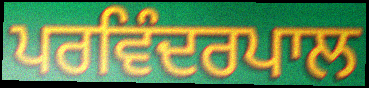
ਪਰਵਿੰਦਰਪਾਲ